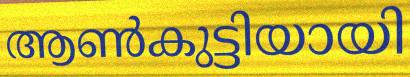
ആൺകുട്ടിയായി